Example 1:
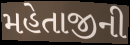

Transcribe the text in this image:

મહેતાજીની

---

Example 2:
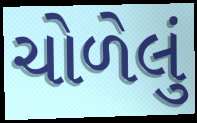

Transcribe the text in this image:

ચોળેલું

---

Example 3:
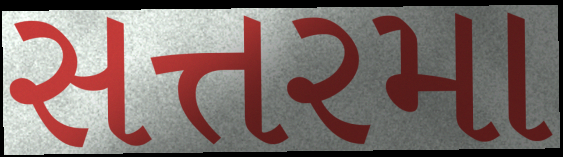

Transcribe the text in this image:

સત્તરમા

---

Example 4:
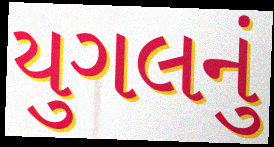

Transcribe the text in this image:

યુગલનું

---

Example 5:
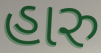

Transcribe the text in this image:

હારુ